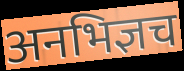
अनभिज्ञच